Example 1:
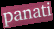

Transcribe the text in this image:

panati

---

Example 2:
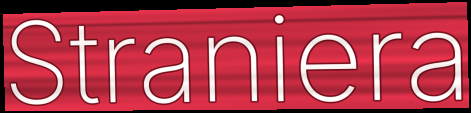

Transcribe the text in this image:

Straniera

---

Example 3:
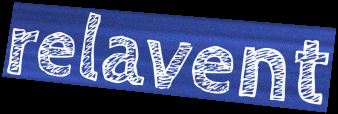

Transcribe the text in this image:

relavent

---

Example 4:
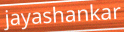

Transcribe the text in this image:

jayashankar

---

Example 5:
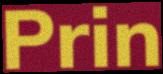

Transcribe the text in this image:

Prin